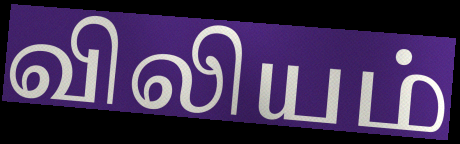
விலியம்